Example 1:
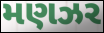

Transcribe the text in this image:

મણઝર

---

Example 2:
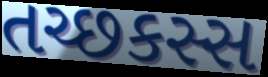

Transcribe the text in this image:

તચ્છકસ્સ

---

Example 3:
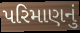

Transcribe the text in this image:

પરિમાણનું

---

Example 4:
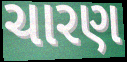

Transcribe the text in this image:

ચારણ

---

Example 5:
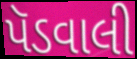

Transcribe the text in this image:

પૅડવાલી